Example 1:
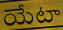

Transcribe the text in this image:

యేటా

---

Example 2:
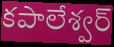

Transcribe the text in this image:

కపాలేశ్వర్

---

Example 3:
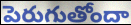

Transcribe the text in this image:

పెరుగుతోందా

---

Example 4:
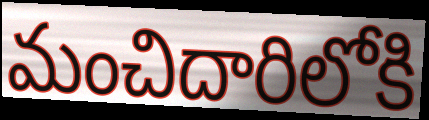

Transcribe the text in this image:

మంచిదారిలోకి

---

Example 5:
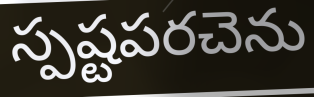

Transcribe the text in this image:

స్పష్టపరచెను